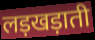
लड़खड़ाती